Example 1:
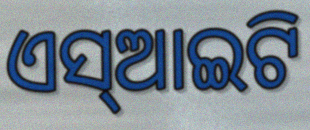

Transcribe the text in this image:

ଏସ୍ଆଇଟି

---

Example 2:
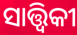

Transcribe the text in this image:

ସାତ୍ତ୍ୱିକୀ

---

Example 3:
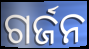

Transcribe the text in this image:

ଗର୍ଜନ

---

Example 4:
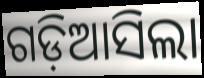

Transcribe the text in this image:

ଗଡ଼ିଆସିଲା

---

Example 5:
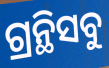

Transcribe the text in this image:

ଗ୍ରନ୍ଥିସବୁ